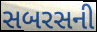
સબરસની